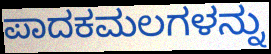
ಪಾದಕಮಲಗಳನ್ನು